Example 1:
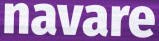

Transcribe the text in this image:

navare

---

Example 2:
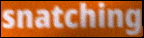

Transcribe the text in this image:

snatching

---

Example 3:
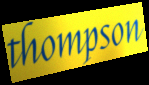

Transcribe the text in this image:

thompson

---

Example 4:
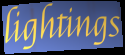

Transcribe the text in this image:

lightings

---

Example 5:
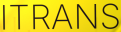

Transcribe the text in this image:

ITRANS